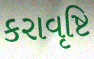
કરાવૃષ્ટિ